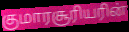
குமாரசூரியரின்